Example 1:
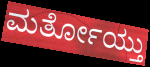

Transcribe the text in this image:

ಮರ್ತೋಯ್ತು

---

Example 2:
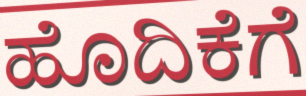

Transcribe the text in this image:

ಹೊದಿಕೆಗೆ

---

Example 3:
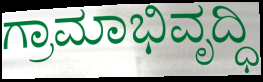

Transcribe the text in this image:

ಗ್ರಾಮಾಭಿವೃದ್ಧಿ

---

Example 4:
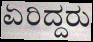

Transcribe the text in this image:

ಏರಿದ್ದರು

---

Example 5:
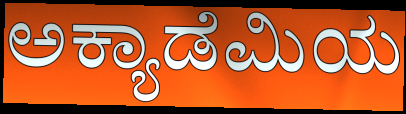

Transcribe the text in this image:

ಅಕ್ಯಾಡೆಮಿಯ